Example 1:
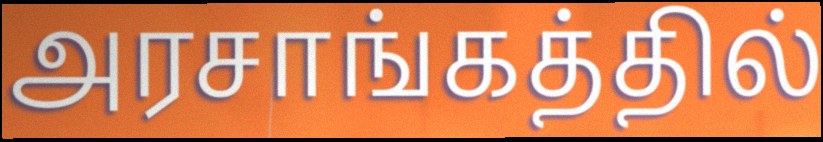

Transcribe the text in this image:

அரசாங்கத்தில்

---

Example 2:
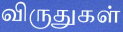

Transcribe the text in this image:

விருதுகள்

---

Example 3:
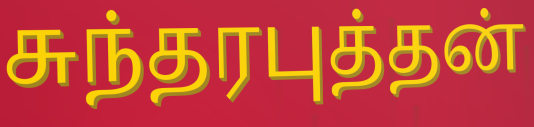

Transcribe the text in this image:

சுந்தரபுத்தன்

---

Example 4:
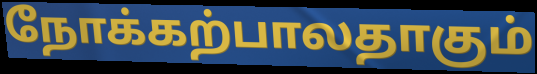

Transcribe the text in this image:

நோக்கற்பாலதாகும்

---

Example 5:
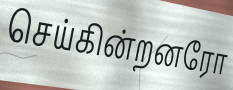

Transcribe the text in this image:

செய்கின்றனரோ